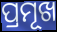
ପ୍ରମୂଖ